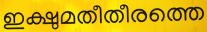
ഇക്ഷുമതീതീരത്തെ